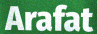
Arafat